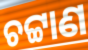
ଚଟ୍ଟାଣ